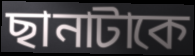
ছানাটাকে